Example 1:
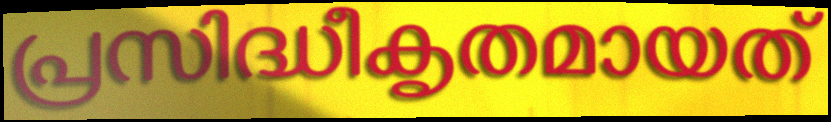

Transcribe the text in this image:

പ്രസിദ്ധീകൃതമായത്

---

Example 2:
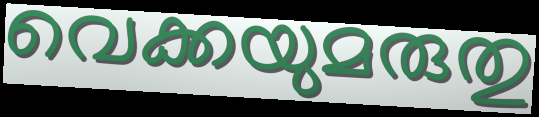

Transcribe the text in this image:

വെക്കയുമരുതു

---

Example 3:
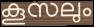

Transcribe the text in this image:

കൂസലും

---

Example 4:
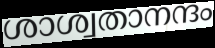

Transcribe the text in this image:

ശാശ്വതാനന്ദം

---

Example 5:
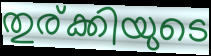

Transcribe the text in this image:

തുര്ക്കിയുടെ